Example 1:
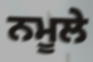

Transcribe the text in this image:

ਨਮੂਲੇ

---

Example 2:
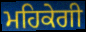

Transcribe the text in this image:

ਮਹਿਕੇਗੀ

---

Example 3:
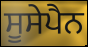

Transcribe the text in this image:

ਸੂਸੇਪੈਨ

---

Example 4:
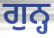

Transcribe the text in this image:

ਗੁਨ੍ਹ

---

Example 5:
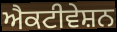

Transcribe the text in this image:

ਐਕਟੀਵੇਸ਼ਨ